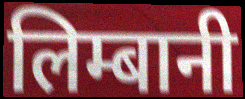
लिम्बानी